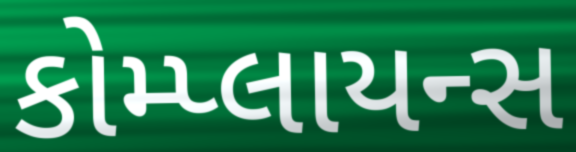
કોમ્પ્લાયન્સ